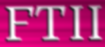
FTII